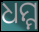
ଧମ୍ମ